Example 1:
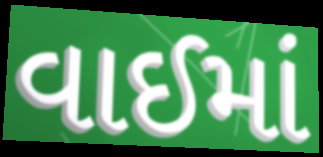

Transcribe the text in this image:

વાઈમાં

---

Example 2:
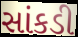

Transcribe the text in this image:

સાંકડી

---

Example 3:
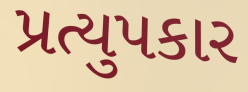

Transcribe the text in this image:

પ્રત્યુપકાર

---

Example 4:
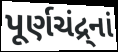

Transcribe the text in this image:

પૂર્ણચંદ્ર્નાં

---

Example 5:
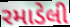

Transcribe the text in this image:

રમાડેલી